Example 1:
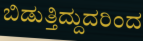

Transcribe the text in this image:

ಬಿಡುತ್ತಿದ್ದುದರಿಂದ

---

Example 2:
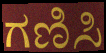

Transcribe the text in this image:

ಗಣಿಸಿ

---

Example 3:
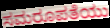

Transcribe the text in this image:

ಸಮರೂಪತೆಯು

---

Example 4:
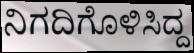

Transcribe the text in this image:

ನಿಗದಿಗೊಳಿಸಿದ್ದ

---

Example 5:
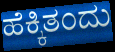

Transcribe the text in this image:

ಹೆಕ್ಕಿತಂದು